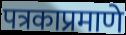
पत्रकाप्रमाणे